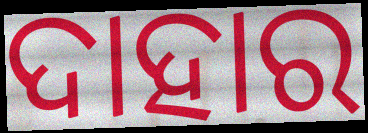
ଦାହାର